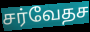
சர்வேதச